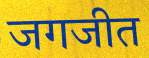
जगजीत